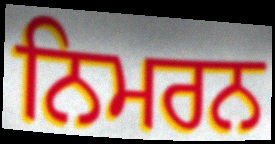
ਨਿਮਰਨ